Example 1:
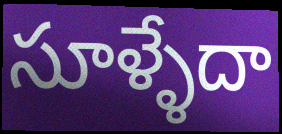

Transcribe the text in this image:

సూళ్ళేదా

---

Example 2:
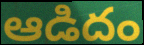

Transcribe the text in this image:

ఆడిదం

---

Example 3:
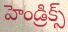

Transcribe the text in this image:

హెండ్రిక్స్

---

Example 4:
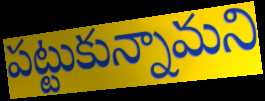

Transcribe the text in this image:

పట్టుకున్నామని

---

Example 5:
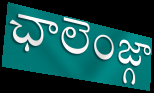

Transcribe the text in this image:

ఛాలెంజ్గా